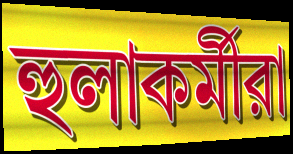
হুলাকর্মীরা